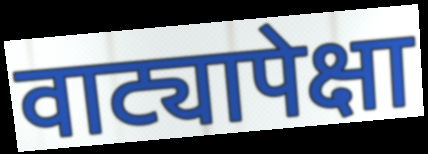
वाट्यापेक्षा